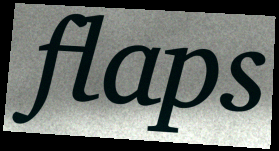
flaps